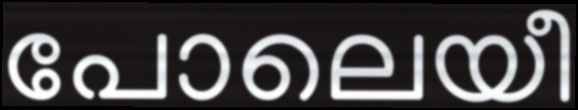
പോലെയീ